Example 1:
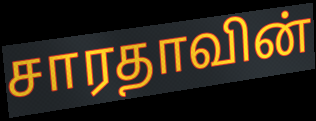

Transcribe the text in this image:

சாரதாவின்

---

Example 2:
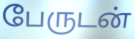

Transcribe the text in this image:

பேருடன்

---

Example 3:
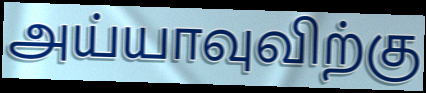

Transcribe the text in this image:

அய்யாவுவிற்கு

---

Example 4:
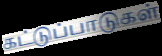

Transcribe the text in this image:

கட்டுப்பாடுகள்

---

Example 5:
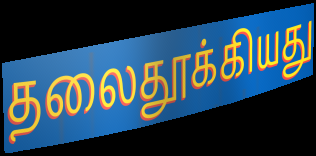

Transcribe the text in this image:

தலைதூக்கியது